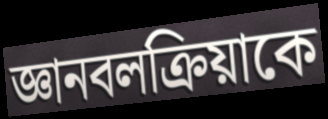
জ্ঞানবলক্রিয়াকে